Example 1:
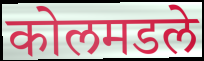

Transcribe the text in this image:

कोलमडले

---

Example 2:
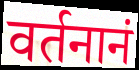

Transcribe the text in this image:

वर्तनानं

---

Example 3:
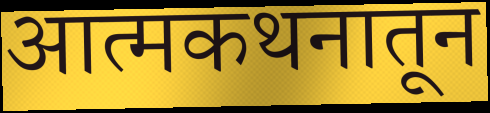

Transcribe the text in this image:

आत्मकथनातून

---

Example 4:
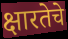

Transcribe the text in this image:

क्षारतेचे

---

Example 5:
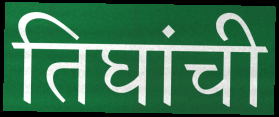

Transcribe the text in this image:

तिघांची